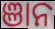
ଞାନ